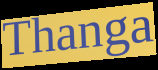
Thanga